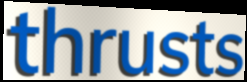
thrusts